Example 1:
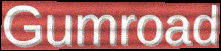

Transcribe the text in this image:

Gumroad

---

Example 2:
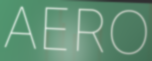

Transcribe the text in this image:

AERO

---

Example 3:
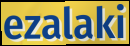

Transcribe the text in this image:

ezalaki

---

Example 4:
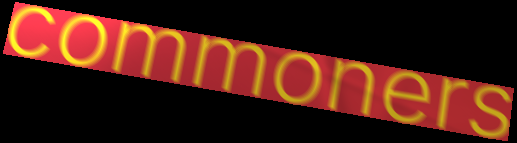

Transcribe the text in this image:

commoners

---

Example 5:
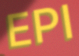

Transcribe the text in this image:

EPI